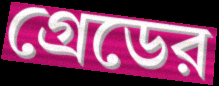
গ্রেডের